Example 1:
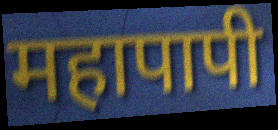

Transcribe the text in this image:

महापापी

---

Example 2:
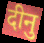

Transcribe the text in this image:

दीनु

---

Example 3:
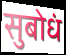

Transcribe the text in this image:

सुबोधं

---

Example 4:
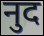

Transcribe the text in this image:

नुद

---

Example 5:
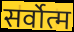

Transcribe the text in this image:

सर्वोत्म